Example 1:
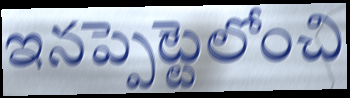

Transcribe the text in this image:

ఇనప్పెట్టెలోంచి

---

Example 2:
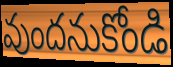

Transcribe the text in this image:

వుందనుకోండి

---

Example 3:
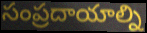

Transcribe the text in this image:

సంప్రదాయాల్ని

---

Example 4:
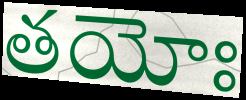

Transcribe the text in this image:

తయోః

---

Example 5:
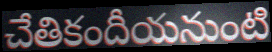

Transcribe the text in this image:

చేతికందీయనుంటి